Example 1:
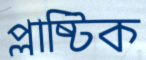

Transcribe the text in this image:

প্লাষ্টিক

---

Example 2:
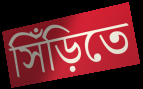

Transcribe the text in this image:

সিঁড়িতে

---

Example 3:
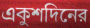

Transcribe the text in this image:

একুশদিনের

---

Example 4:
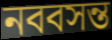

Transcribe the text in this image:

নববসন্ত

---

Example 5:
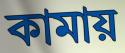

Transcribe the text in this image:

কামায়